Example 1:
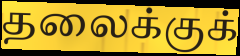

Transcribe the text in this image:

தலைக்குக்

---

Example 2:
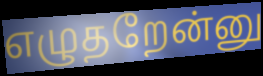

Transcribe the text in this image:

எழுதறேன்னு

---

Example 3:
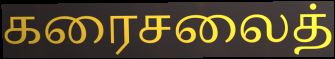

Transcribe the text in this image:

கரைசலைத்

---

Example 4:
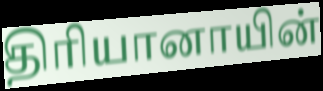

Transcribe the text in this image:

திரியானாயின்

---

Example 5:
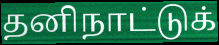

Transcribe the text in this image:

தனிநாட்டுக்